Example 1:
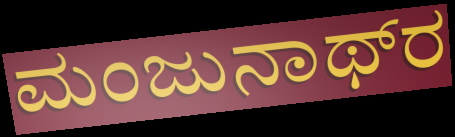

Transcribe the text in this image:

ಮಂಜುನಾಥ್‌ರ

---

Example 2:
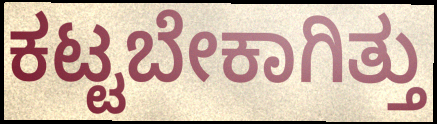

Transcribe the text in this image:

ಕಟ್ಟಬೇಕಾಗಿತ್ತು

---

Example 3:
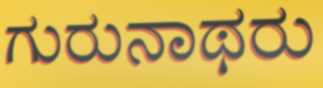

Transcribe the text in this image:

ಗುರುನಾಥರು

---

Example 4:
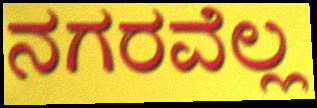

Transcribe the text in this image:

ನಗರವೆಲ್ಲ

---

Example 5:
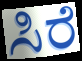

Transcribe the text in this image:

ಸಿರೆ